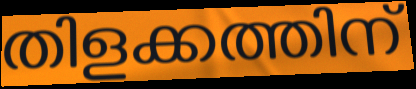
തിളക്കത്തിന്